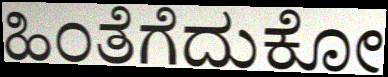
ಹಿಂತೆಗೆದುಕೋ